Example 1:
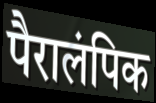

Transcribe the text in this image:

पैरालंपिक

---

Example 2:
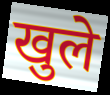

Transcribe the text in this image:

खुले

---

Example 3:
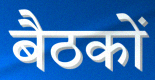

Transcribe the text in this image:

बैठकों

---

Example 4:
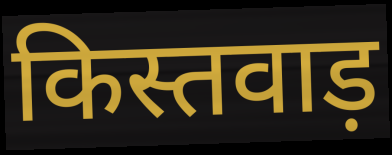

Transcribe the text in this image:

किस्तवाड़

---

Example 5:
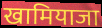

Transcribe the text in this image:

खामियाजा